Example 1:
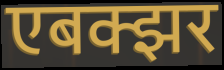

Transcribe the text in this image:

एबक्झर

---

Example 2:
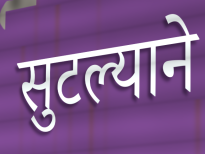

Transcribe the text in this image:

सुटल्याने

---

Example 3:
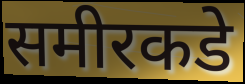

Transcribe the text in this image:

समीरकडे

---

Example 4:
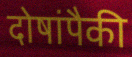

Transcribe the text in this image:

दोषांपैकी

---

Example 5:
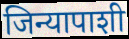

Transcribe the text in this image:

जिन्यापाशी